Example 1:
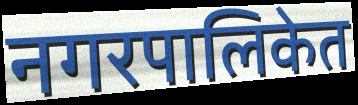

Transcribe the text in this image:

नगरपालिकेत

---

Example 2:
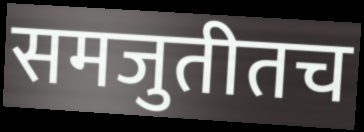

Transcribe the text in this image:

समजुतीतच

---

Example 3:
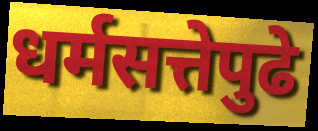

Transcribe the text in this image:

धर्मसत्तेपुढे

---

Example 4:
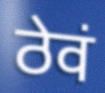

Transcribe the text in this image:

ठेवं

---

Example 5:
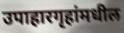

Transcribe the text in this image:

उपाहारगृहांमधील